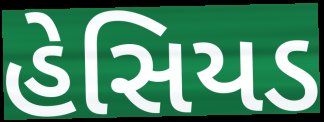
હેસિયડ